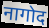
नागोद